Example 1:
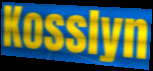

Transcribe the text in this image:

Kosslyn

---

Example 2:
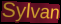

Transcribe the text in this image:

Sylvan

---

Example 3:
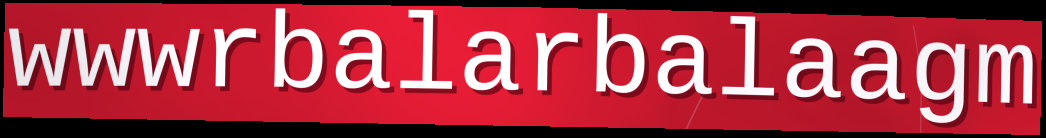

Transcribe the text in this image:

wwwrbalarbalaagm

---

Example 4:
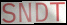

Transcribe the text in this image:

SNDT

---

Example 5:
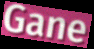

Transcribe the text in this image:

Gane